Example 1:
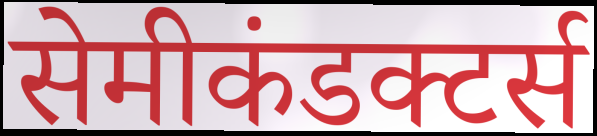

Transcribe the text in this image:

सेमीकंडक्टर्स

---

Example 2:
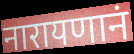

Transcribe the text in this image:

नारायणानं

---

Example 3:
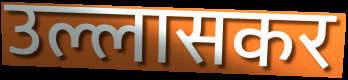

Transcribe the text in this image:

उल्लासकर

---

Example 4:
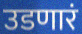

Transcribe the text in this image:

उडणारं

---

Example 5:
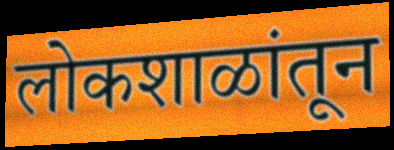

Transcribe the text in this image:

लोकशाळांतून